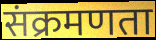
संक्रमणता